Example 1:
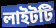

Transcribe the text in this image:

লাইটটি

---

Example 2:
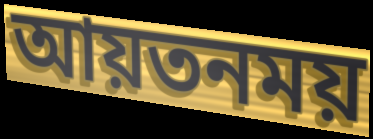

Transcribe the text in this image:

আয়তনময়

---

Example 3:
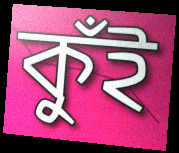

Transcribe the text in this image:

কুঁই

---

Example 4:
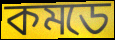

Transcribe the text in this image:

কমডে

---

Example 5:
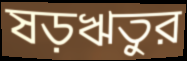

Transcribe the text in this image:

ষড়ঋতুর